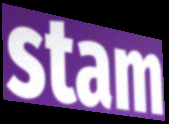
stam